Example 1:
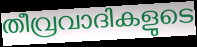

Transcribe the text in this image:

തീവ്രവാദികളുടെ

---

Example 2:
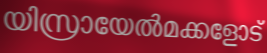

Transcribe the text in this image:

യിസ്രായേൽമക്കളോട്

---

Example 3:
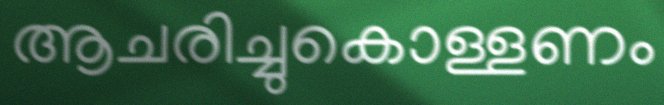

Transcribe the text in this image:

ആചരിച്ചുകൊള്ളണം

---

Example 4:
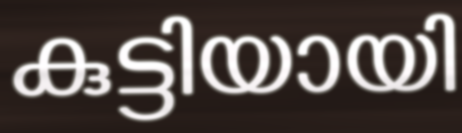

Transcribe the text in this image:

കുട്ടിയായി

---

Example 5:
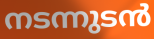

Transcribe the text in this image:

നടന്നുടൻ